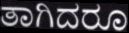
ತಾಗಿದರೂ